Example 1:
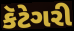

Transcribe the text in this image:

કૅટેગરી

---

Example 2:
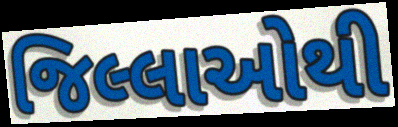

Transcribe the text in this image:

જિલ્લાઓથી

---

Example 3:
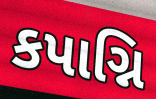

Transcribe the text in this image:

કપાગ્નિ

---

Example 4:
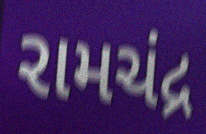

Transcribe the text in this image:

રામચંદ્ર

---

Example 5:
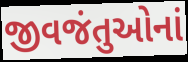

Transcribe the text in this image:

જીવજંતુઓનાં